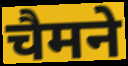
चैमने